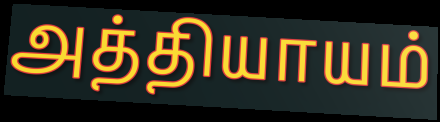
அத்தியாயம்